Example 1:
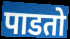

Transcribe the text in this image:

पाडतो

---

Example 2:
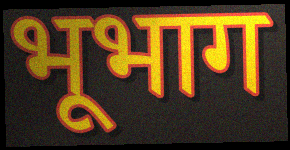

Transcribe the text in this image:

भूभाग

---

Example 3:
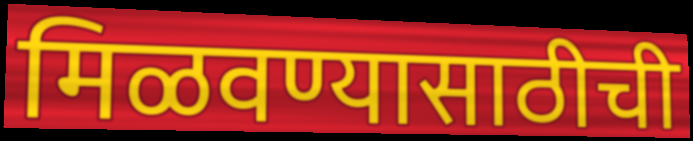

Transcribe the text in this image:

मिळवण्यासाठीची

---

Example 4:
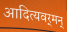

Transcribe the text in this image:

आदित्यवर्मन्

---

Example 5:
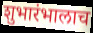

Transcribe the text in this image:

शुभारंभालाच